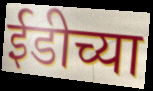
ईडीच्या